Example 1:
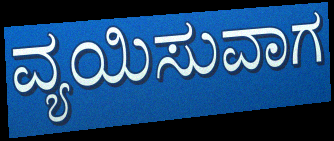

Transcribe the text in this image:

ವ್ಯಯಿಸುವಾಗ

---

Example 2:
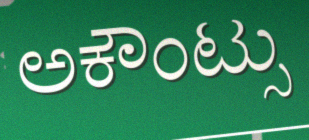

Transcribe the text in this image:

ಅಕೌಂಟ್ಸು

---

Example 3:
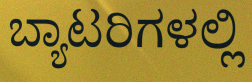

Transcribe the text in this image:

ಬ್ಯಾಟರಿಗಳಲ್ಲಿ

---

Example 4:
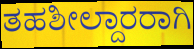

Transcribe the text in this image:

ತಹಶೀಲ್ದಾರರಾಗಿ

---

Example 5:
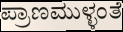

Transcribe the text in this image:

ಪ್ರಾಣಮುಳ್ಳಂತೆ